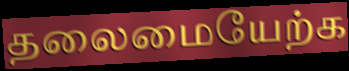
தலைமையேற்க